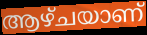
ആഴ്ചയാണ്